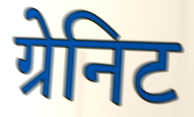
ग्रेनिट